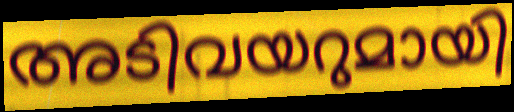
അടിവയറുമായി